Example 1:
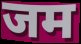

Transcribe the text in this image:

जम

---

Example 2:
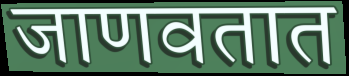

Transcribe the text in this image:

जाणवतात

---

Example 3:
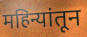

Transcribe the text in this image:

महिन्यांतून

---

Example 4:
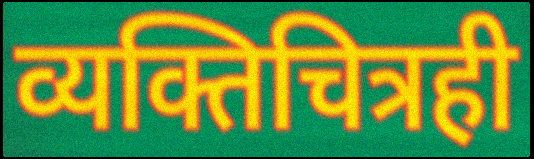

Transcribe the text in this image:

व्यक्तिचित्रही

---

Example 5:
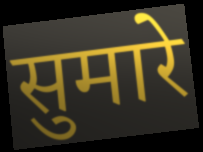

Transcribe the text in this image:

सुमारे